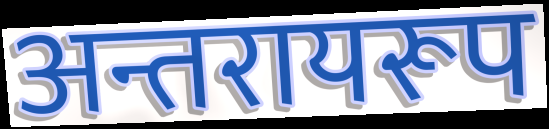
अन्तरायरूप